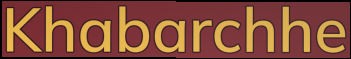
Khabarchhe